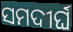
ସମଦୀର୍ଘ